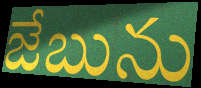
జేబును